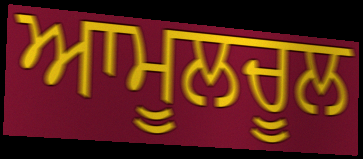
ਆਮੂਲਚੂਲ